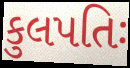
કુલપતિઃ